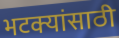
भटक्यांसाठी